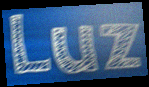
Luz